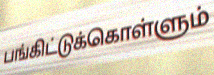
பங்கிட்டுக்கொள்ளும்